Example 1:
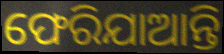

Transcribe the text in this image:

ଫେରିଯାଆନ୍ତି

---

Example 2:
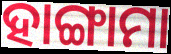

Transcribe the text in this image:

ହାଙ୍ଗାମା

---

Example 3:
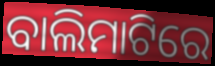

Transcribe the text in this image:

ବାଲିମାଟିରେ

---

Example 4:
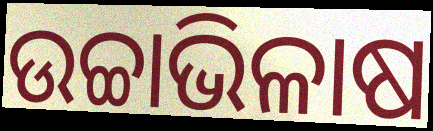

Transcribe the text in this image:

ଉଚ୍ଚାଭିଳାଷ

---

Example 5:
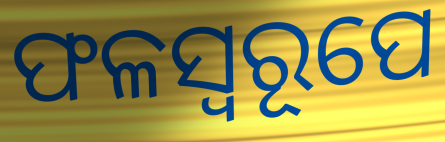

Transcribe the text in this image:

ଫଳସ୍ୱରୂପେ